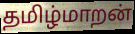
தமிழ்மாறன்